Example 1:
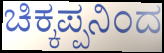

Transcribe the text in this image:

ಚಿಕ್ಕಪ್ಪನಿಂದ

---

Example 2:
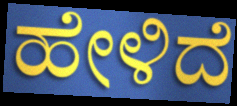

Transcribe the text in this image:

ಹೇಳಿದೆ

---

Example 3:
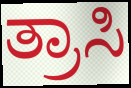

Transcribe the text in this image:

ತ್ರಾಸಿ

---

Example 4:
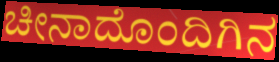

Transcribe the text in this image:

ಚೀನಾದೊಂದಿಗಿನ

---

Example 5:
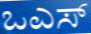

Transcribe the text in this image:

ಒಎಸ್